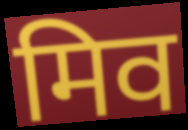
मिव